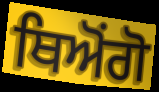
ਥਿਅੋਂਗੋ